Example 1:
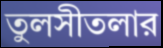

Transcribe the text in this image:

তুলসীতলার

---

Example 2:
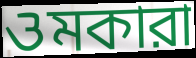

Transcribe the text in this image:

ওমকারা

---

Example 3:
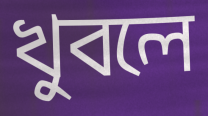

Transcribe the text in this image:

খুবলে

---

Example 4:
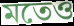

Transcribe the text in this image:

মতেও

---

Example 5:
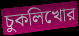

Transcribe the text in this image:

চুকলিখোর